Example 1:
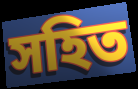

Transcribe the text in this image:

সহিত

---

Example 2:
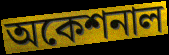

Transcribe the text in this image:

অকেশনাল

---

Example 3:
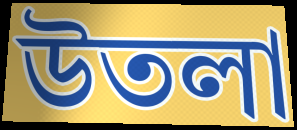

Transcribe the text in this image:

উতলা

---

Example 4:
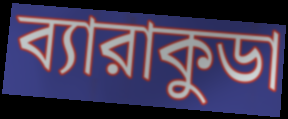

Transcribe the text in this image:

ব্যারাকুডা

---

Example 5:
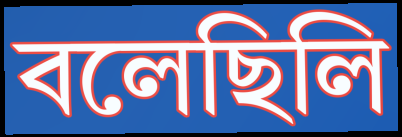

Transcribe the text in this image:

বলেছিলি